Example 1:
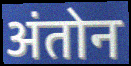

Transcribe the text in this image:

अंतोन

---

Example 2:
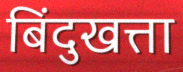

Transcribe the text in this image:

बिंदुखत्ता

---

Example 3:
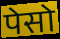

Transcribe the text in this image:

पेसो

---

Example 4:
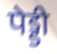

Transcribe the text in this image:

पेड्डी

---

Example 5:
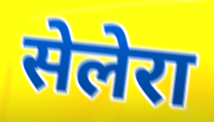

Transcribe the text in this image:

सेलेरा